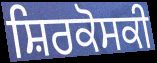
ਸ਼ਿਰਕੋਸਕੀ